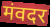
मंवदर